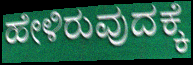
ಹೇಳಿರುವುದಕ್ಕೆ